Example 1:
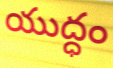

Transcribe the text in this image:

యుద్ధం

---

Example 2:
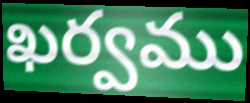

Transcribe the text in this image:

ఖర్వము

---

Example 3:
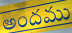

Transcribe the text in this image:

అందము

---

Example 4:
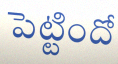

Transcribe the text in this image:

పెట్టిందో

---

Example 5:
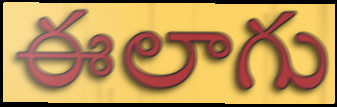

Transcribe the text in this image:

ఈలాగు